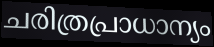
ചരിത്രപ്രാധാന്യം